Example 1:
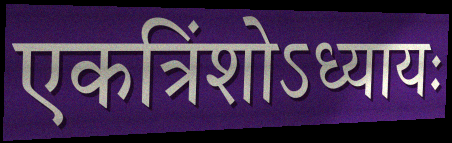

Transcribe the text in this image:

एकत्रिंशोऽध्यायः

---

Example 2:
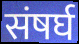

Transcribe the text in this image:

संषर्घ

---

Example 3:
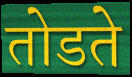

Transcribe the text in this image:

तोडते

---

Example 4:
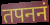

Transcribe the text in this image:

तपननं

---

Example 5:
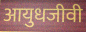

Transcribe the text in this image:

आयुधजीवी